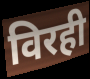
विरही